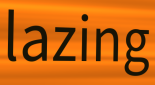
lazing